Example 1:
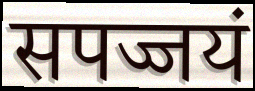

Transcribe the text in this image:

सपज्जयं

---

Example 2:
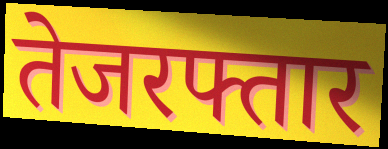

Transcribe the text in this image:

तेजरफ्तार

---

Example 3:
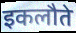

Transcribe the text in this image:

इकलौते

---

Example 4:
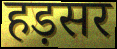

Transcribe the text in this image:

हड़सर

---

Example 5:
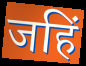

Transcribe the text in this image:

जहिं